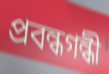
প্রবন্ধগন্ধী